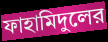
ফাহামিদুলের